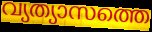
വ്യത്യാസത്തെ